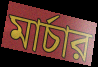
মার্চার